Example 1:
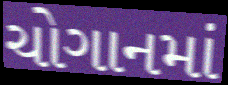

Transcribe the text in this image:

ચોગાનમાં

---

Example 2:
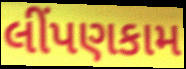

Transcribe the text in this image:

લીંપણકામ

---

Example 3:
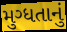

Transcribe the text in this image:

મુગ્ધતાનું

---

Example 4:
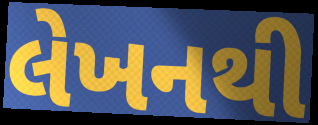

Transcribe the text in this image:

લેખનથી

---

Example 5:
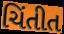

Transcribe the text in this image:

ચિંતીત